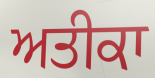
ਅਤੀਕਾ